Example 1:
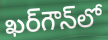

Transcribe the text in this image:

ఖర్‌గౌన్‌లో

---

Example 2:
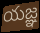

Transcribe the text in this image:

యజ్ఞ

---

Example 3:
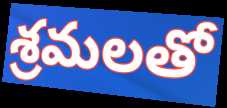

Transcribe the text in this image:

శ్రమలతో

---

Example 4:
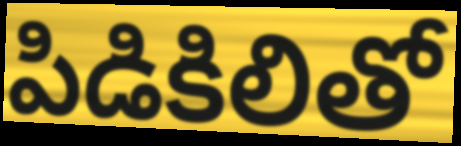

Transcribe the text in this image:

పిడికిలితో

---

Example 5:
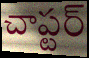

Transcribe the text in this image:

చాప్టర్